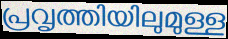
പ്രവൃത്തിയിലുമുള്ള